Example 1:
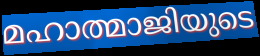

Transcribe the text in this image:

മഹാത്മാജിയുടെ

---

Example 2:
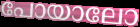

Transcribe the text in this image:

പോയാലോ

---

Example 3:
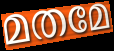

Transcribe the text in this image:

മതമേ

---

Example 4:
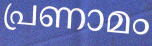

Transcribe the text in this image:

പ്രണാമം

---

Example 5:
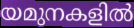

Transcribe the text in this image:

യമുനകളിൽ